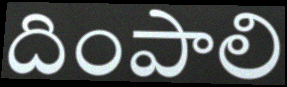
దింపాలి